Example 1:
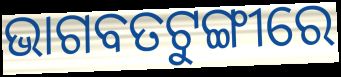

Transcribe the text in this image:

ଭାଗବତଟୁଙ୍ଗୀରେ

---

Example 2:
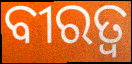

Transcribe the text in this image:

ବୀରତ୍ୱ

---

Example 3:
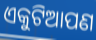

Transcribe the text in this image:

ଏକୁଟିଆପଣ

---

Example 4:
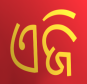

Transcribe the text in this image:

ଏଜି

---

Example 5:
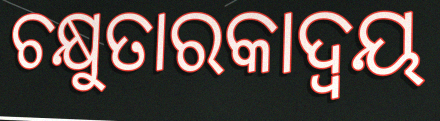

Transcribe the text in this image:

ଚକ୍ଷୁତାରକାଦ୍ଵୟ